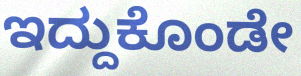
ಇದ್ದುಕೊಂಡೇ